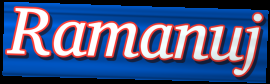
Ramanuj